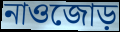
নাওজোড়